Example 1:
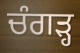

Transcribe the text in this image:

ਚੰਗੜ੍ਹ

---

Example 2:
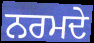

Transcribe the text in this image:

ਨਰਮਦੇ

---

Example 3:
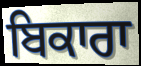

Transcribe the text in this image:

ਬਿਕਾਰਾ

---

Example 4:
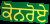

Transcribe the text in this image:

ਕੋਨਰੋਏ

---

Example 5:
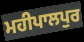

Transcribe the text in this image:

ਮਹੀਪਾਲਪੁਰ